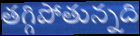
తగ్గిపోతున్నది